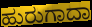
ಹುರುಗಾದಾ